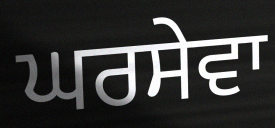
ਘਰਸੇਵਾ